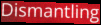
Dismantling